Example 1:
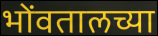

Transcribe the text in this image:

भोंवतालच्या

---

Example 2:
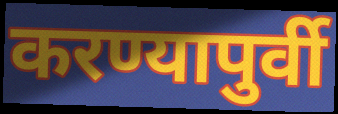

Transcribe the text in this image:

करण्यापुर्वी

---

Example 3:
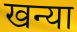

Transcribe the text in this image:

खन्या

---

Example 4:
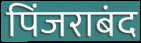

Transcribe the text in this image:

पिंजराबंद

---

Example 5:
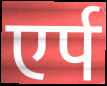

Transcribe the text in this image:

एर्प